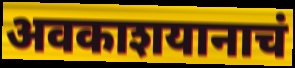
अवकाशयानाचं